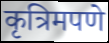
कृत्रिमपणे